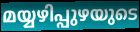
മയ്യഴിപ്പുഴയുടെ